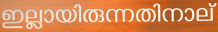
ഇല്ലായിരുന്നതിനാല്